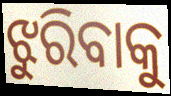
ଝୁରିବାକୁ